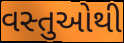
વસ્તુઓથી